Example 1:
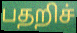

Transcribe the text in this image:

பதறிச்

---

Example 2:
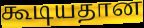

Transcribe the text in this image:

கூடியதான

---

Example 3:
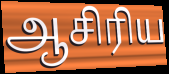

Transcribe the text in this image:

ஆசிரிய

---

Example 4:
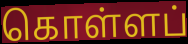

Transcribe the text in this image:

கொள்ளப்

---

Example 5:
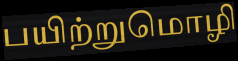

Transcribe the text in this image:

பயிற்றுமொழி